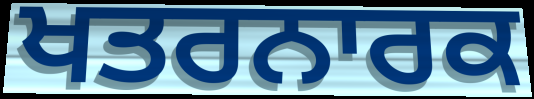
ਖਤਰਨਾਰਕ